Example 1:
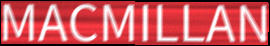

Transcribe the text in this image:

MACMILLAN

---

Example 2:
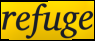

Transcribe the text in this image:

refuge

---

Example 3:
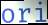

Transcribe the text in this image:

ori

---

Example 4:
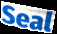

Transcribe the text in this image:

Seal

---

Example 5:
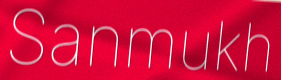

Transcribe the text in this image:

Sanmukh